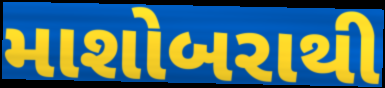
માશોબરાથી